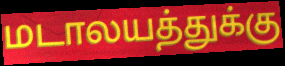
மடாலயத்துக்கு